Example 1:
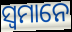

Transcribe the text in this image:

ସ୍ୱମାନେ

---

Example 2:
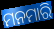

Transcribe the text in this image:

ମନମାରି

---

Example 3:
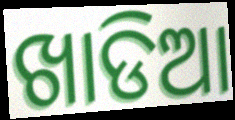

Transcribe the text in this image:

ଖାଡିଆ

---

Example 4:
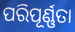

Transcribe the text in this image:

ପରିପୂର୍ଣ୍ଣତା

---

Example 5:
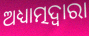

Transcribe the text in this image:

ଅଧ୍ୟାତ୍ମଦ୍ୱାରା